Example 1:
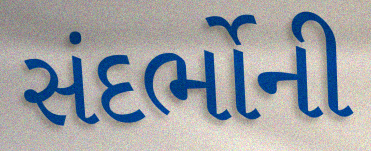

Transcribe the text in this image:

સંદર્ભોની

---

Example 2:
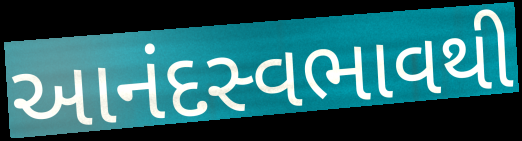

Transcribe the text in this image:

આનંદસ્વભાવથી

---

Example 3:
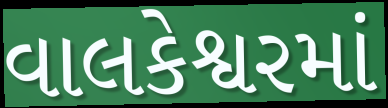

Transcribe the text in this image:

વાલકેશ્વરમાં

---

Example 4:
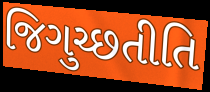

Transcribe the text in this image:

જિગુચ્છતીતિ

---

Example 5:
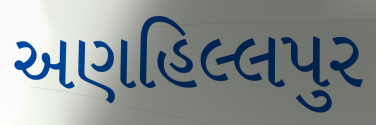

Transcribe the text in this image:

અણહિલ્લપુર